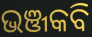
ଭଞ୍ଜକବି